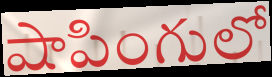
షాపింగులో